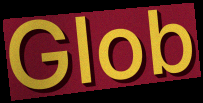
Glob